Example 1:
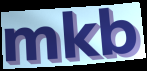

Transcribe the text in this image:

mkb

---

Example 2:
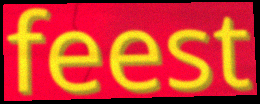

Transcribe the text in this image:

feest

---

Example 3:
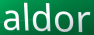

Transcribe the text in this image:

aldor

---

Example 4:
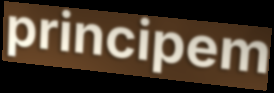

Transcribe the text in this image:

principem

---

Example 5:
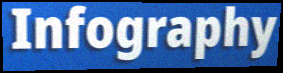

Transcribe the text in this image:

Infography